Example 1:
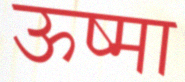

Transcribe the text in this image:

ऊष्मा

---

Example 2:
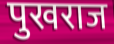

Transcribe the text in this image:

पुखराज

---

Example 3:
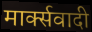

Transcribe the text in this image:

मार्क्सवादी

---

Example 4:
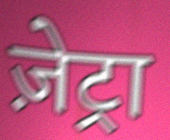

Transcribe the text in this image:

ज़ेट्रा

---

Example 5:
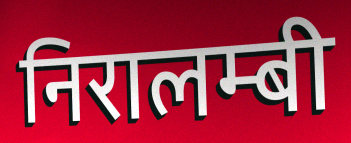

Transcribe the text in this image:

निरालम्बी